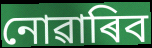
নোৱাৰিব